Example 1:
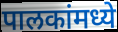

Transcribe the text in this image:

पालकांमध्ये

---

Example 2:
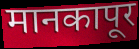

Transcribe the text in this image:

मानकापूर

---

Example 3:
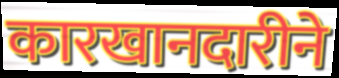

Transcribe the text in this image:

कारखानदारीने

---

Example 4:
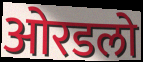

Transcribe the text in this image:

ओरडलो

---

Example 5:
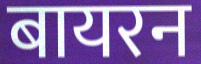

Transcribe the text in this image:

बायरन